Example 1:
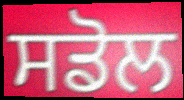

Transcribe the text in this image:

ਸਡੋਲ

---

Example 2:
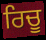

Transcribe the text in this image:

ਰਿਚੂ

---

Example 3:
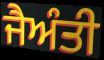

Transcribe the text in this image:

ਜੈਅੰਤੀ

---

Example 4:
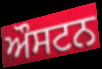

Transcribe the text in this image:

ਔਸਟਨ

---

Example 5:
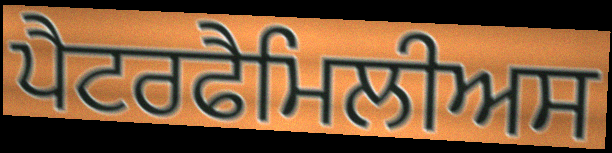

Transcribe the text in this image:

ਪੈਟਰਫੈਮਿਲੀਅਸ